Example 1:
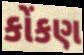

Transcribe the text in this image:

કોંકણ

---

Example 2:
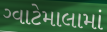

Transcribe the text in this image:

ગ્વાટેમાલામાં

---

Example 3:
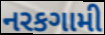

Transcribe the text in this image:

નરકગામી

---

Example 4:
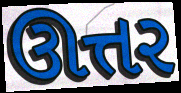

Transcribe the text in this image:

ઊત્તર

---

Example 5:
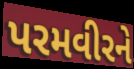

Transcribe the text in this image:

પરમવીરને